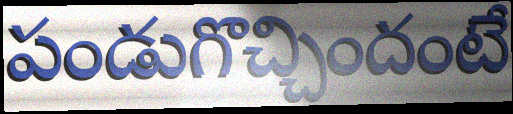
పండుగొచ్చిందంటే